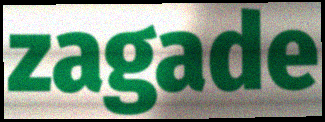
zagade